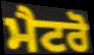
ਮੈਟਰੋ